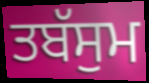
ਤਬੱਸੁਮ